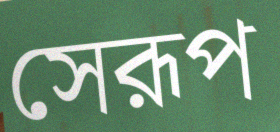
সেরূপ